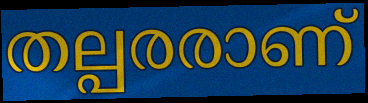
തല്പരരാണ്